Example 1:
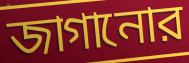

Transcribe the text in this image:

জাগানোর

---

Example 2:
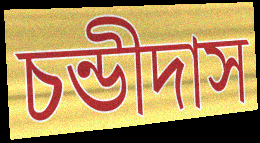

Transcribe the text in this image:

চন্ডীদাস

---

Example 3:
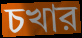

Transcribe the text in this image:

চখার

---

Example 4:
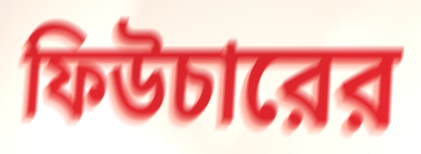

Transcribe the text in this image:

ফিউচারের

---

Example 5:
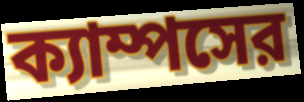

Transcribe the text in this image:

ক্যাম্পসের